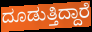
ದೂಡುತ್ತಿದ್ದಾರೆ